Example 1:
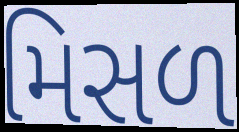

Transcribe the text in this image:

મિસળ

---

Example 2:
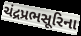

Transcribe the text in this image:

ચંદ્રપ્રભસૂરિના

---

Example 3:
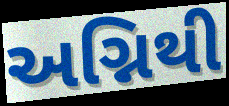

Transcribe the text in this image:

અગ્નિથી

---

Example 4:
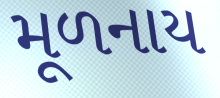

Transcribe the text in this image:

મૂળનાય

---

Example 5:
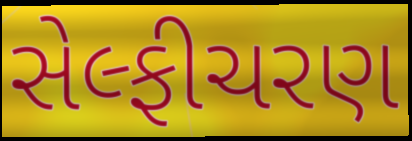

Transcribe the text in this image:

સેલ્ફીચરણ